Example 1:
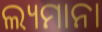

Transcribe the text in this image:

ଲ୍ୟମାନା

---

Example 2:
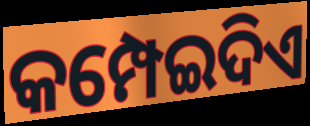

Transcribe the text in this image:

କମ୍ପେଇଦିଏ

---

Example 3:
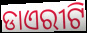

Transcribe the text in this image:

ଡାଏରୀଟି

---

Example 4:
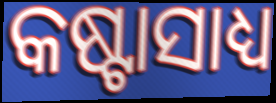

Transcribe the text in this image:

କଷ୍ଟାସାଧ୍ୟ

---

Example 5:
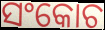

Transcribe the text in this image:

ସଂକୋଚ